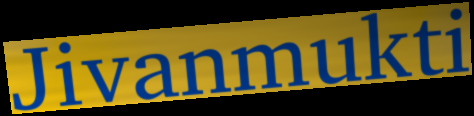
Jivanmukti